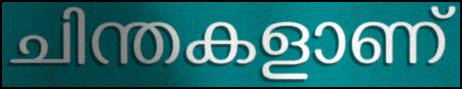
ചിന്തകളാണ്